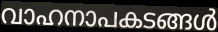
വാഹനാപകടങ്ങൾ